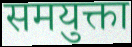
समयुक्ता